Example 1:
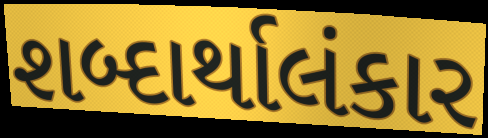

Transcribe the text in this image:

શબ્દાર્થાલંકાર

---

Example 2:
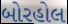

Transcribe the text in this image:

બોરહોલ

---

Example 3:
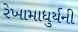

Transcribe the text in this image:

રેખામાધુર્યની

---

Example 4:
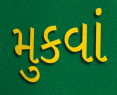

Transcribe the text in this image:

મુકવાં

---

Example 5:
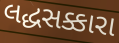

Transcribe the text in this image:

લદ્ધસક્કારા